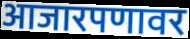
आजारपणावर